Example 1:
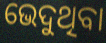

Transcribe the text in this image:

ଭେଦୁଥିବା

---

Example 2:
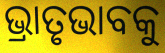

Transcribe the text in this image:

ଭ୍ରାତୃଭାବକୁ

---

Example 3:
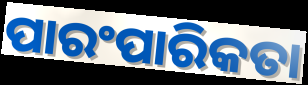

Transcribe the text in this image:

ପାରଂପାରିକତା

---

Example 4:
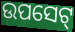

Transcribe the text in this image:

ଉପସେଟ୍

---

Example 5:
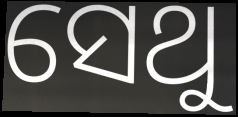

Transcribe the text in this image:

ସେଥୁ